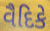
વૈદિકે